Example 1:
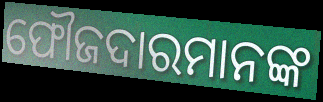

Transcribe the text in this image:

ଫୌଜଦାରମାନଙ୍କ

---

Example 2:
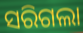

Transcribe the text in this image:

ସରିଗଲା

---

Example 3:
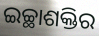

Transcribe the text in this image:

ଇଚ୍ଛାଶକ୍ତିର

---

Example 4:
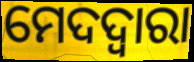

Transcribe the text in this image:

ମେଦଦ୍ଵାରା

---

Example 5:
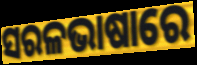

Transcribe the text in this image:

ସରଳଭାଷାରେ